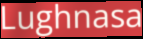
Lughnasa